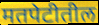
मतपेटीतील